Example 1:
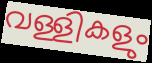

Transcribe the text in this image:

വള്ളികളും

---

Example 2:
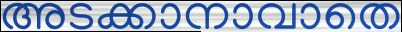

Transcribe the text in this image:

അടക്കാനാവാതെ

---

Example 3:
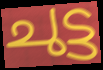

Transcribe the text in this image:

ചുട്ട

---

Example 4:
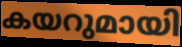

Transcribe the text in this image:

കയറുമായി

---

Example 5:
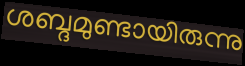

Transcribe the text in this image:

ശബ്ദമുണ്ടായിരുന്നു